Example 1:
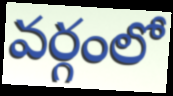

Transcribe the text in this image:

వర్గంలో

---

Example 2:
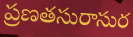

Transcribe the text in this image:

ప్రణతసురాసుర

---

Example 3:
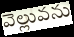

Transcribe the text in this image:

వెల్లువను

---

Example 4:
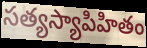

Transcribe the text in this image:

సత్యస్యాపిహితం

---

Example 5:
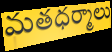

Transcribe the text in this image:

మతధర్మాలు